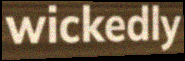
wickedly